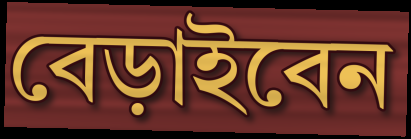
বেড়াইবেন